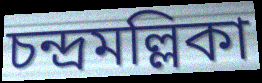
চন্দ্রমল্লিকা